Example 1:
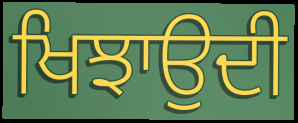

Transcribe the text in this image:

ਖਿਝਾਉਦੀ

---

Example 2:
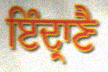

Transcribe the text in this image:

ਇੰਦ੍ਰਾਣੈ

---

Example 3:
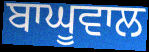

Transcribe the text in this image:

ਬਾਘੂਵਾਲ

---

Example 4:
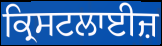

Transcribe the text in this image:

ਕ੍ਰਿਸਟਲਾਈਜ਼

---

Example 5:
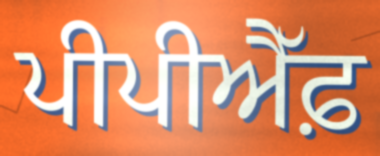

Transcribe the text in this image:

ਪੀਪੀਐੱਫ਼